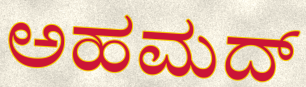
ಅಹಮದ್